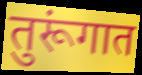
तुरूंगात